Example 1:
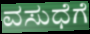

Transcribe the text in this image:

ವಸುಧೆಗೆ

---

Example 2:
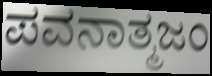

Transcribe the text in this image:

ಪವನಾತ್ಮಜಂ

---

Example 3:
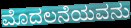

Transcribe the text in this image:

ಮೊದಲನೆಯವನು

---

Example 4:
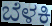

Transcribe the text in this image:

ಬೆಳಕಿ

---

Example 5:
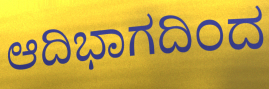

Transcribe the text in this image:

ಆದಿಭಾಗದಿಂದ